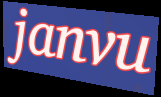
janvu